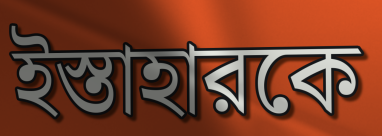
ইস্তাহারকে